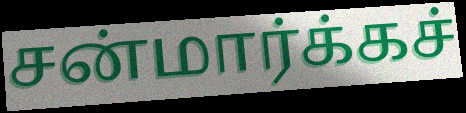
சன்மார்க்கச்